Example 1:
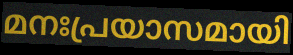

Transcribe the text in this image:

മനഃപ്രയാസമായി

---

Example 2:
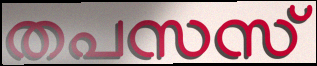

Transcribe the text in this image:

തപസസ്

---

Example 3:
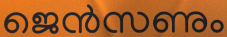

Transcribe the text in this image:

ജെൻസണും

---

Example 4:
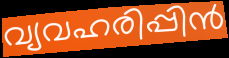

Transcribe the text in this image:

വ്യവഹരിപ്പിൻ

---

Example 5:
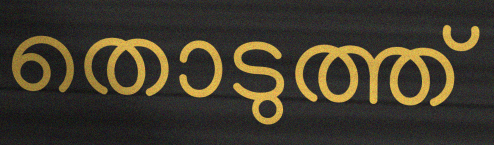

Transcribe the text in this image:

തൊടുത്ത്